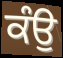
ਕੰਉ